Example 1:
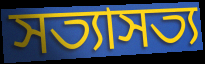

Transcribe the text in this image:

সত্যাসত্য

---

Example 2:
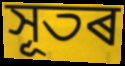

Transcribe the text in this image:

সূতৰ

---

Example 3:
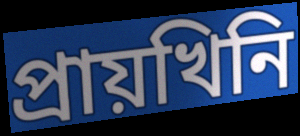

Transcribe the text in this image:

প্ৰায়খিনি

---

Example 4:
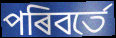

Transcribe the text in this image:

পৰিবৰ্তে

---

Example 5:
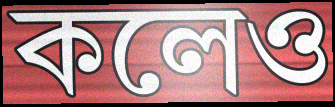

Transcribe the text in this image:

কলেও